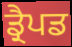
ਡ੍ਰੈਪਡ